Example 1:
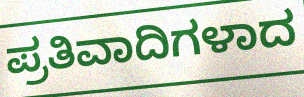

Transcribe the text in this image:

ಪ್ರತಿವಾದಿಗಳಾದ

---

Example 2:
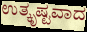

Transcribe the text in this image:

ಉತ್ಕೃಷ್ಟವಾದ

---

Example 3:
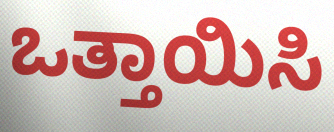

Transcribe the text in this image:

ಒತ್ತಾಯಿಸಿ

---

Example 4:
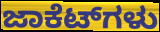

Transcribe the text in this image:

ಜಾಕೆಟ್‌ಗಳು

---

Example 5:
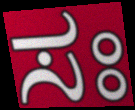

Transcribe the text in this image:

ಸಃ